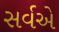
સર્વએ